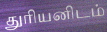
துரியனிடம்